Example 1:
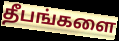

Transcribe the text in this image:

தீபங்களை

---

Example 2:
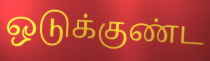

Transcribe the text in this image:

ஒடுக்குண்ட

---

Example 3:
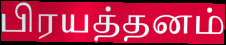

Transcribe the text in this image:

பிரயத்தனம்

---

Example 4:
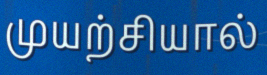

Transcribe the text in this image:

முயற்சியால்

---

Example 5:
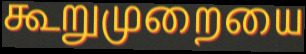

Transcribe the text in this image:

கூறுமுறையை